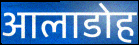
आलाडोह